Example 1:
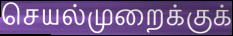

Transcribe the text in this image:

செயல்முறைக்குக்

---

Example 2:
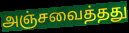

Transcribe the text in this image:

அஞ்சவைத்தது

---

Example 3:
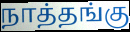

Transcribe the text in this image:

நாத்தங்கு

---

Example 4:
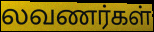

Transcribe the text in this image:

லவணர்கள்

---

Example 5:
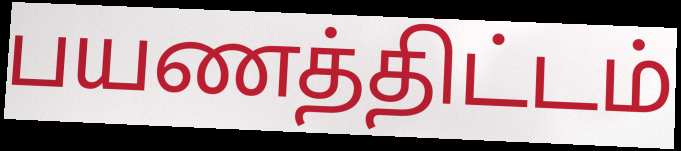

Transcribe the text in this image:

பயணத்திட்டம்